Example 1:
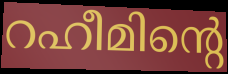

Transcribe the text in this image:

റഹീമിന്റെ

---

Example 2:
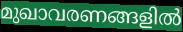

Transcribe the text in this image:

മുഖാവരണങ്ങളിൽ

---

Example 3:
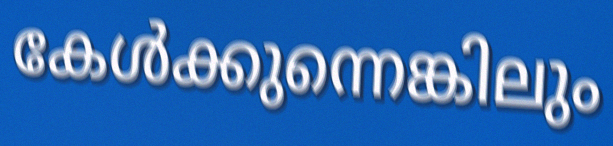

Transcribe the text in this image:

കേൾക്കുന്നെങ്കിലും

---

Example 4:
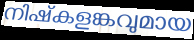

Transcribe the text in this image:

നിഷ്‌കളങ്കവുമായ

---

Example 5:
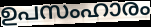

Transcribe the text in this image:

ഉപസംഹാരം